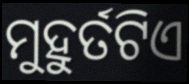
ମୁହୁର୍ତଟିଏ